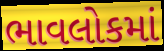
ભાવલોકમાં